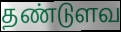
தண்டுளவ